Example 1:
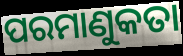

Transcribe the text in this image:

ପରମାଣୁକତା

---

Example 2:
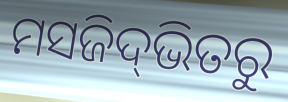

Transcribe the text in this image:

ମସଜିଦ୍‌ଭିତରୁ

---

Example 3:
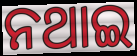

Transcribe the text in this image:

ନଥାଇ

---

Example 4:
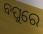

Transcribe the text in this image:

ବପୁରେ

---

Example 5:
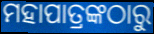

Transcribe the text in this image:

ମହାପାତ୍ରଙ୍କଠାରୁ